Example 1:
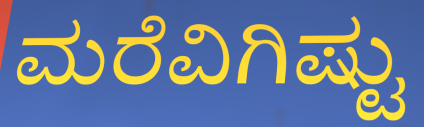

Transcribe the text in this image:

ಮರೆವಿಗಿಷ್ಟು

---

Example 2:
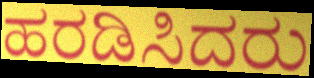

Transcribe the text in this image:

ಹರಡಿಸಿದರು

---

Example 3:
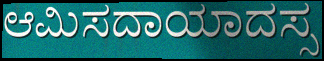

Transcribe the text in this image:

ಆಮಿಸದಾಯಾದಸ್ಸ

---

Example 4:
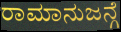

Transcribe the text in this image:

ರಾಮಾನುಜನ್ಗೆ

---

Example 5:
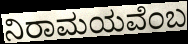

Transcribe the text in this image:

ನಿರಾಮಯವೆಂಬ